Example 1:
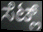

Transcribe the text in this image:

ಸೆಟ್ಲ್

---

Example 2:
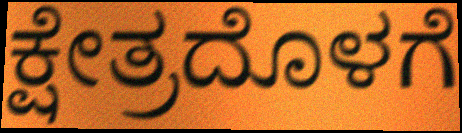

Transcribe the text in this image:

ಕ್ಷೇತ್ರದೊಳಗೆ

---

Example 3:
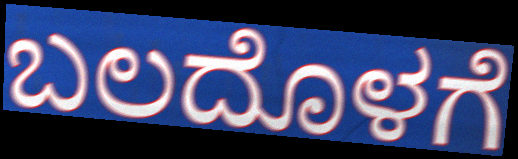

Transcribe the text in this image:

ಬಲದೊಳಗೆ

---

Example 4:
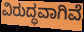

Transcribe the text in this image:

ವಿರುದ್ಧವಾಗಿವೆ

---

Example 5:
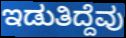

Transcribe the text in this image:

ಇಡುತಿದ್ದೆವು